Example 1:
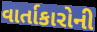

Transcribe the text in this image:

વાર્તાકારોની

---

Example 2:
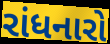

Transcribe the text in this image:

રાંધનારો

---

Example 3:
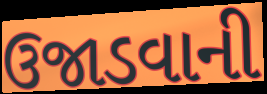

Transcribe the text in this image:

ઉજાડવાની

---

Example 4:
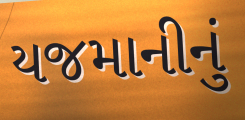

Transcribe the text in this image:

યજમાનીનું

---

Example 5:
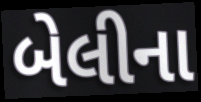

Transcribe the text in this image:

બેલીના